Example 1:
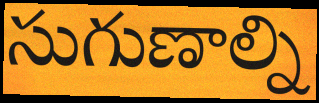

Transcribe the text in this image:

సుగుణాల్ని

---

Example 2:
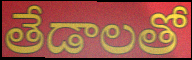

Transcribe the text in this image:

తేడాలతో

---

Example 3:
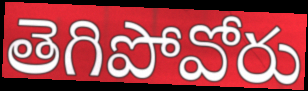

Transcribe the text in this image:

తెగిపోవోరు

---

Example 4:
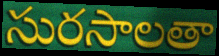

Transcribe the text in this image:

సురసాలతా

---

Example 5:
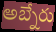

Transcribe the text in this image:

అబ్నేరు